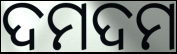
ଦମଦମ